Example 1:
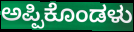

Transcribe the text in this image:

ಅಪ್ಪಿಕೊಂಡಳು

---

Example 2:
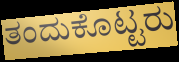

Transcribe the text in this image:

ತಂದುಕೊಟ್ಟರು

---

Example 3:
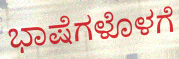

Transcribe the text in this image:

ಭಾಷೆಗಳೊಳಗೆ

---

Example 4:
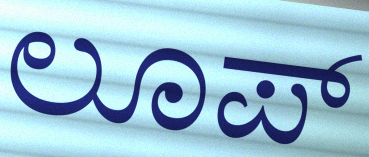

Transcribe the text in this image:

ಲೂಪ್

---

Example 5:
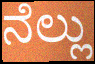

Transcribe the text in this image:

ನೆಲ್ಲು